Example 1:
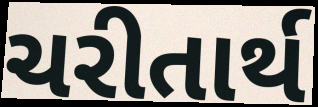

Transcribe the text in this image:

ચરીતાર્થ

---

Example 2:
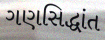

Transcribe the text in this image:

ગણસિદ્ધાંત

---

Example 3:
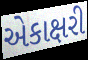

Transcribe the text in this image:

એકાક્ષરી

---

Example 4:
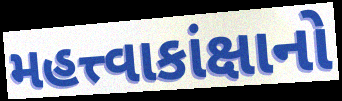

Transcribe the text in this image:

મહત્ત્વાકાંક્ષાનો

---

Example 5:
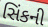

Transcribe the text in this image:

સિંકની